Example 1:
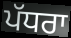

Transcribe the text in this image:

ਪੱਧਰਾ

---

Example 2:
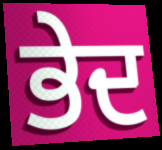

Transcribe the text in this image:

ਭੇਦ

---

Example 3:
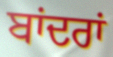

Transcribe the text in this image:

ਬਾਂਦਰਾਂ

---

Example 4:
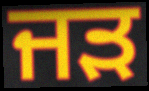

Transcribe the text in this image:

ਜੜ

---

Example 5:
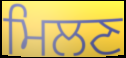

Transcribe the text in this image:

ਮਿਲਣ